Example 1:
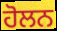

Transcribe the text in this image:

ਹੋਲਨ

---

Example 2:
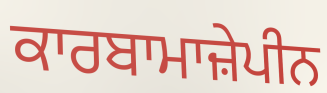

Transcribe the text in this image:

ਕਾਰਬਾਮਾਜ਼ੇਪੀਨ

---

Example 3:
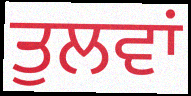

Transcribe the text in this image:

ਤੁਲਵਾਂ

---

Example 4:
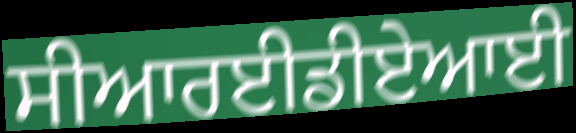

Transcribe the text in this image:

ਸੀਆਰਈਡੀਏਆਈ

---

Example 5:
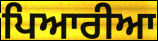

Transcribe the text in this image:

ਪਿਆਰੀਆ